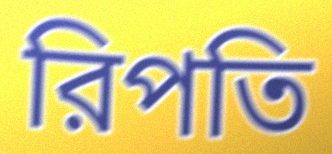
রিপতি